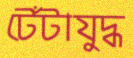
টেঁটাযুদ্ধ